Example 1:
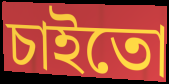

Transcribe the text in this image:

চাইতো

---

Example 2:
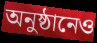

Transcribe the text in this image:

অনুষ্ঠানেও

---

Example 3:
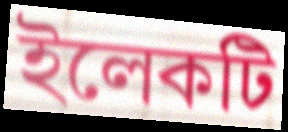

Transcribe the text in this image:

ইলেকটি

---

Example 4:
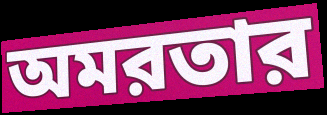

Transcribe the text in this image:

অমরতার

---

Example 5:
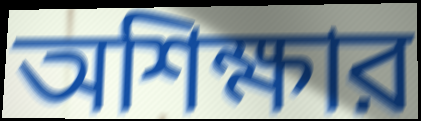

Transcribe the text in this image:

অশিক্ষার